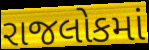
રાજલોકમાં